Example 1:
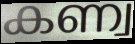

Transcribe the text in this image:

കണ്വ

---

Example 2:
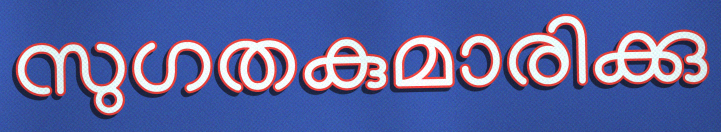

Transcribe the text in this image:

സുഗതകുമാരിക്കു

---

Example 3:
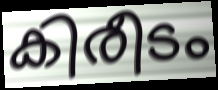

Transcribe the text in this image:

കിരീടം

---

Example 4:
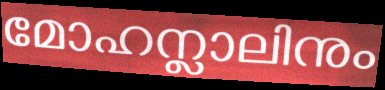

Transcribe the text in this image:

മോഹന്ലാലിനും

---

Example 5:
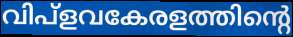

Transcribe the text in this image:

വിപ്ളവകേരളത്തിന്റെ